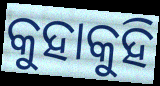
କୁହାକୁହି